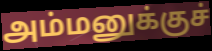
அம்மனுக்குச்